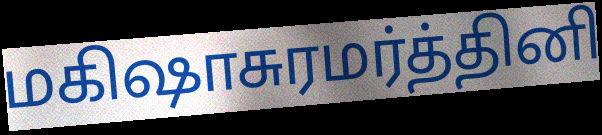
மகிஷாசுரமர்த்தினி